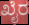
ಖೈರ